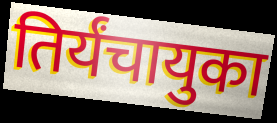
तिर्यंचायुका